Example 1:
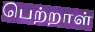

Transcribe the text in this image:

பெற்றாள்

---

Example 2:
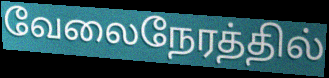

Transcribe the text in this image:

வேலைநேரத்தில்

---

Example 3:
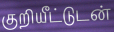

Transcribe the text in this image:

குறியீட்டுடன்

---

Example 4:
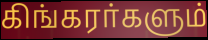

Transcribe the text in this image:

கிங்கரர்களும்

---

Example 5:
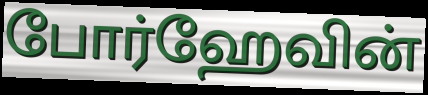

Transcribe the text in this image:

போர்ஹேவின்